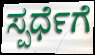
ಸ್ಪರ್ಧೆಗೆ